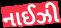
નાઈઝી